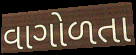
વાગોળતા